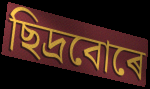
ছিদ্ৰবোৰে